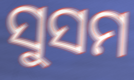
ସୁସମ